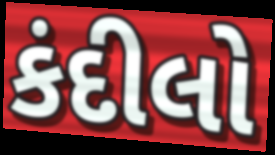
કંદીલો